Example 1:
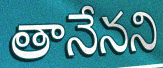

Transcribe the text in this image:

తానేనని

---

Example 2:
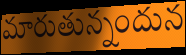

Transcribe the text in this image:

మారుతున్నందున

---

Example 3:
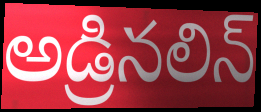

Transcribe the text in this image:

అడ్రినలిన్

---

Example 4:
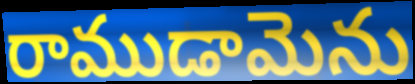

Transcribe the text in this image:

రాముడామెను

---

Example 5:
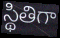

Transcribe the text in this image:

స్థితిగా